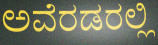
ಅವೆರಡರಲ್ಲಿ